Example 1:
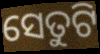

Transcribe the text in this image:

ସେତୁଟି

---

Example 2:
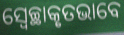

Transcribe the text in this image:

ସ୍ୱେଚ୍ଛାକୃତଭାବେ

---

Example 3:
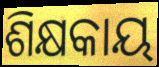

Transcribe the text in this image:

ଶିକ୍ଷକାୟ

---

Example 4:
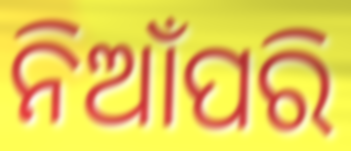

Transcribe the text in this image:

ନିଆଁପରି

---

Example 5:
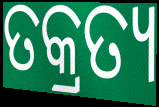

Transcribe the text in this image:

ତକ୍ରତ୍ୟ